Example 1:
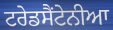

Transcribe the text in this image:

ਟਰੇਡਸੈਂਟੇਨੀਆ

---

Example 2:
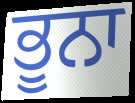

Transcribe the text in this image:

ਭੂਨਾ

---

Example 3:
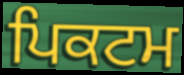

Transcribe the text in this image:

ਪਿਕਟਮ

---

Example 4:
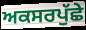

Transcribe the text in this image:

ਅਕਸਰਪੁੱਛੇ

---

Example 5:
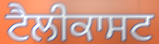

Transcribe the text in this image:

ਟੈਲੀਕਾਸਟ